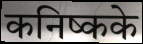
कनिष्कके